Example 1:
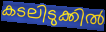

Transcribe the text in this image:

കടലിടുക്കിൽ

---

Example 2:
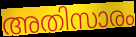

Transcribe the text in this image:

അതിസാരം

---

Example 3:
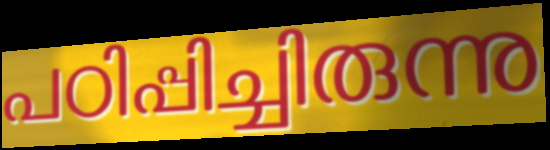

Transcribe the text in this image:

പഠിപ്പിച്ചിരുന്നു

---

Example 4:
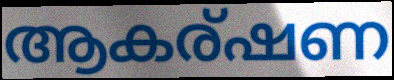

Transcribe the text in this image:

ആകര്ഷണ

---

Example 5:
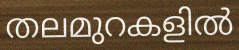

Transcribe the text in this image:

തലമുറകളിൽ